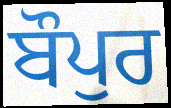
ਬੌਪੁਰ